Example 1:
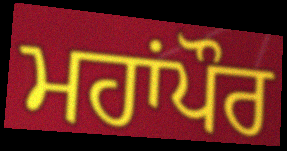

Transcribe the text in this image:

ਮਹਾਂਪੌਰ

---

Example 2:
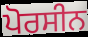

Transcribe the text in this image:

ਪੋਰਸੀਨ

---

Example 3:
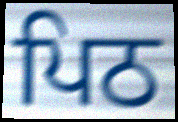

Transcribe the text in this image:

ਪਿਠ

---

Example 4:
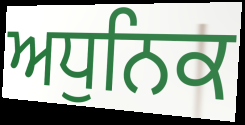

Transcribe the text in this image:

ਅਧੁਨਿਕ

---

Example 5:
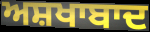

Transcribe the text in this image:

ਅਸ਼ਖਾਬਾਦ